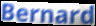
Bernard